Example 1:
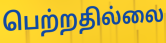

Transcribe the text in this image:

பெற்றதில்லை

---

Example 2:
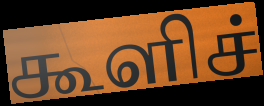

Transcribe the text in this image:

கூளிச்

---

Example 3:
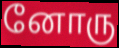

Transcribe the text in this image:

னோரு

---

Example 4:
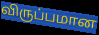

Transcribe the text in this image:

விருப்பமான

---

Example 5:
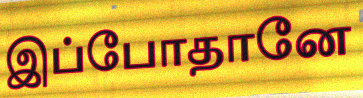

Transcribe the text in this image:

இப்போதானே